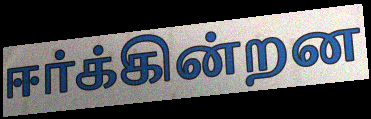
ஈர்க்கின்றன